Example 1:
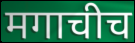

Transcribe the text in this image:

मगाचीच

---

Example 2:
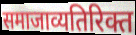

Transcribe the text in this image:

समाजाव्यतिरिक्त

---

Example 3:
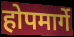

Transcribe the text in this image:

होपमार्गे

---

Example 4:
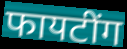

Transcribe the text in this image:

फायटींग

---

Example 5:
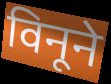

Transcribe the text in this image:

विनूने